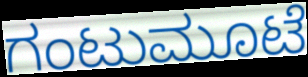
ಗಂಟುಮೂಟೆ